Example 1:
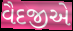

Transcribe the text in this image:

વૈદજીએ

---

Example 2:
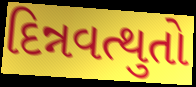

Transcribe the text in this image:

દિન્નવત્થુતો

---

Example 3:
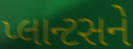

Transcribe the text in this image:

પ્લાન્ટસને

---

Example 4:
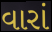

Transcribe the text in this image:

વારાં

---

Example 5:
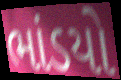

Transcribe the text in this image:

ભાંડયો